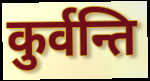
कुर्वन्ति